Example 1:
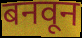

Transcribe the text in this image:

बनवून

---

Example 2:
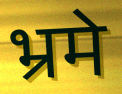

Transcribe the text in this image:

भ्रमे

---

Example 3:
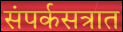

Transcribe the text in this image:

संपर्कसत्रात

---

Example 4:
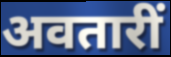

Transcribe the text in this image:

अवतारीं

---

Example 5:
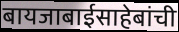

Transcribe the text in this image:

बायजाबाईसाहेबांची